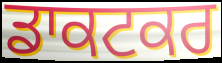
ਡਾਕਟਕਰ